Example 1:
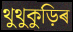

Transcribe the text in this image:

থুথুকুড়িৰ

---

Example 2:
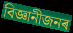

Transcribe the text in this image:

বিজ্ঞানীজনৰ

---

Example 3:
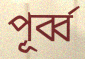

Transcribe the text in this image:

পূৰ্ব্ব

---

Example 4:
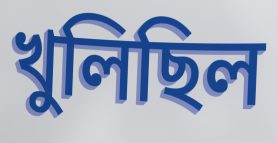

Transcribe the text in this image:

খুলিছিল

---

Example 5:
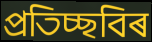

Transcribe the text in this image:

প্ৰতিচ্ছবিৰ